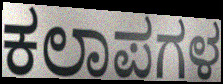
ಕಲಾಪಗಳ